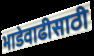
भाडेवाढीसाठी